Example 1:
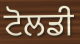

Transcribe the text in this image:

ਟੋਲਡੀ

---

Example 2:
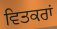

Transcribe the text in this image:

ਵਿਤਕਰਾਂ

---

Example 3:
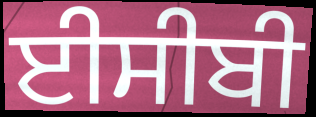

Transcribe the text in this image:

ਈਸੀਬੀ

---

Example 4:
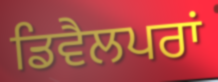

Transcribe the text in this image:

ਡਿਵੈਲਪਰਾਂ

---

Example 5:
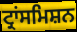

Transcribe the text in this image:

ਟ੍ਰਾਂਸਮਿਸ਼ਨ